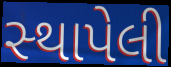
સ્‍થાપેલી